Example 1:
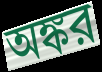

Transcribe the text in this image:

অঙ্কর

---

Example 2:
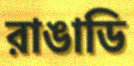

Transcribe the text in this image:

রাঙাডি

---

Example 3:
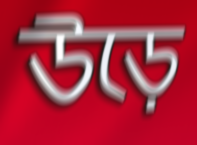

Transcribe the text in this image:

উড়ে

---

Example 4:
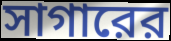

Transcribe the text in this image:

সাগারের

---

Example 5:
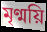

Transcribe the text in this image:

মৃণ্ময়ি